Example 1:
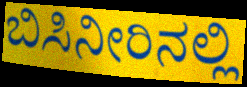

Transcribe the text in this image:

ಬಿಸಿನೀರಿನಲ್ಲಿ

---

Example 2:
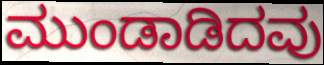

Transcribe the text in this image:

ಮುಂಡಾಡಿದವು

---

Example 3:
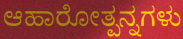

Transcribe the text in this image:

ಆಹಾರೋತ್ಪನ್ನಗಳು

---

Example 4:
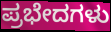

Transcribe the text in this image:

ಪ್ರಭೇದಗಳು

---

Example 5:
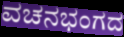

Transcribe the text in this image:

ವಚನಭಂಗದ